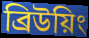
ব্রিউয়িং